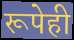
रूपेही